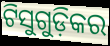
ଟିସୁଗୁଡ଼ିକର